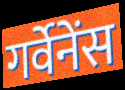
गर्वेनेंस